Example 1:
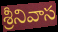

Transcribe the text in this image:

శ్రీనివాస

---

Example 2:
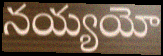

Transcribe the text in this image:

నయ్యయో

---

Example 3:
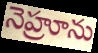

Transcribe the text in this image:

నెహ్రూను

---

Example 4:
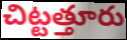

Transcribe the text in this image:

చిట్టత్తూరు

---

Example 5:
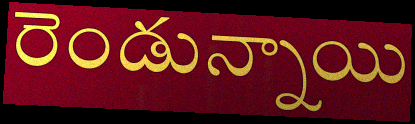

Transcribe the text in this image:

రెండున్నాయి